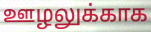
ஊழலுக்காக